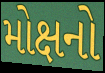
મોક્ષનો